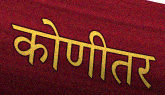
कोणीतर